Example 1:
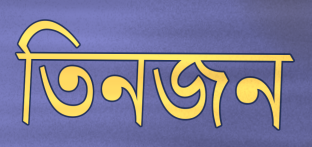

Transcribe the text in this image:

তিনজন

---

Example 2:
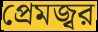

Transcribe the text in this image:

প্রেমজ্বর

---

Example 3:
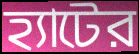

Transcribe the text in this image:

হ্যাটের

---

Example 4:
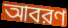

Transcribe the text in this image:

আবরণ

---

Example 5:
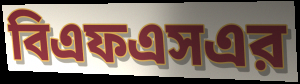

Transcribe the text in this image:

বিএফএসএর